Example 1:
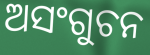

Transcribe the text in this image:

ଅସଂଗୁଚନ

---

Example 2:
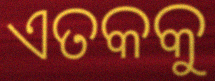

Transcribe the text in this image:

ଏତକକୁ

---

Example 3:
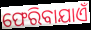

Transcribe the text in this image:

ଫେରିବାଯାଏଁ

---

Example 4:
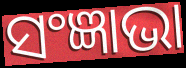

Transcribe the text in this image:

ସଂଜ୍ଞାଭା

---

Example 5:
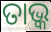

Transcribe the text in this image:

ତାଭ୍କ